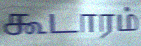
கூடாரம்